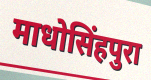
माधोसिंहपुरा